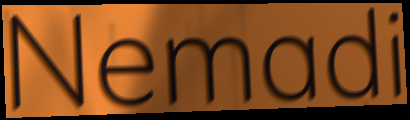
Nemadi